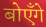
बोएँगे